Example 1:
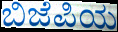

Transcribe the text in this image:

ಬಿಜೆಪಿಯ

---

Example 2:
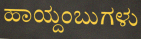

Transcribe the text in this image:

ಹಾಯ್ದಂಬುಗಳು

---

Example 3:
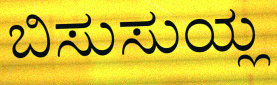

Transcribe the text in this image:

ಬಿಸುಸುಯ್ಲ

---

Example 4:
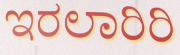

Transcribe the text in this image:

ಇರಲಾರಿರಿ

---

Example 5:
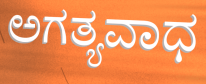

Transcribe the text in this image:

ಅಗತ್ಯವಾಧ